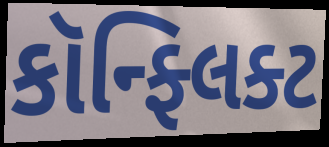
કૉન્ફ્લિક્ટ